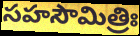
సహసౌమిత్రిః